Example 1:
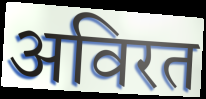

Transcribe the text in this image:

अविरत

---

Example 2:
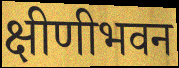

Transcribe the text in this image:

क्षीणीभवन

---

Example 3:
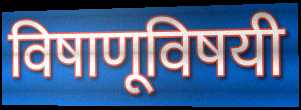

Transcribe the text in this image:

विषाणूविषयी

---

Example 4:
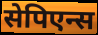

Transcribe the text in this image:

सेपिएन्स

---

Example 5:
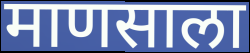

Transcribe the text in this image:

माणसाला